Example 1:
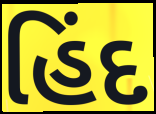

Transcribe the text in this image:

હિંદ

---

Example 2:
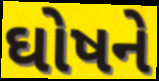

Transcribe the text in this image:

ઘોષને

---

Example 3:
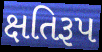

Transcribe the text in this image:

ક્ષતિરૂપ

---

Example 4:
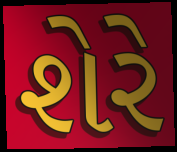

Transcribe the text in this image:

શેરે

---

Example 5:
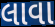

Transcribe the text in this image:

લાવા